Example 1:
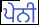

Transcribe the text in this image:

ਪੇਨੀ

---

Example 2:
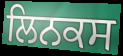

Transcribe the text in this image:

ਲਿਨਕਸ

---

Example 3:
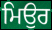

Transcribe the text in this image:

ਮਿਉਰ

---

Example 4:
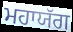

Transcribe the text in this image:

ਮਹਾਯੱਗ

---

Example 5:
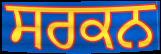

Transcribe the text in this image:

ਸਰਕਨ